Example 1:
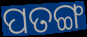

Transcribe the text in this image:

ପତଙ୍ଗ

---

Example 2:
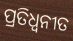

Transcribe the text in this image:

ପ୍ରତିଧ୍ବନୀତ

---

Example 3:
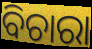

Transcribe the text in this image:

ବିଚାରା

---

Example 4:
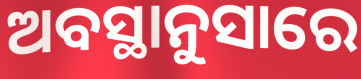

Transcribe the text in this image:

ଅବସ୍ଥାନୁସାରେ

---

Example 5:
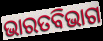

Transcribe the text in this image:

ଭାରତବିଭାଗ